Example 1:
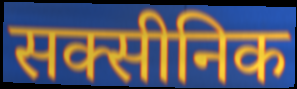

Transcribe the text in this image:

सक्सीनिक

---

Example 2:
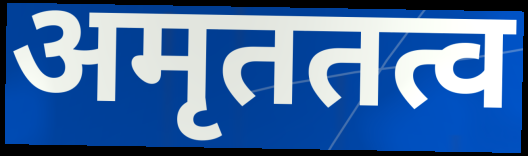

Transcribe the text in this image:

अमृततत्व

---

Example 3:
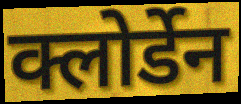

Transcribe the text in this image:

क्लोर्डेन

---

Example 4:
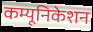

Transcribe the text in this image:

कम्यूनिकेशन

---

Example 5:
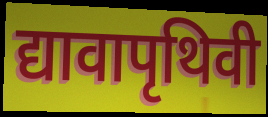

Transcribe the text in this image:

द्यावापृथिवी